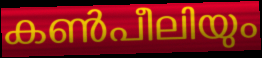
കൺപീലിയും